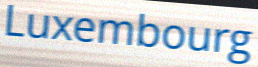
Luxembourg